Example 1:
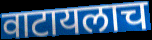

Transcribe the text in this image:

वाटायलाच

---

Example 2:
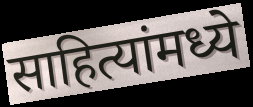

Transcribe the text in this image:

साहित्यांमध्ये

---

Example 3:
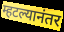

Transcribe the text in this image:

म्हटल्यानंतर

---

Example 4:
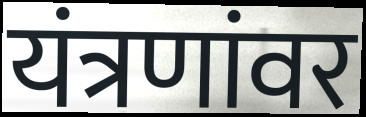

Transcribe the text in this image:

यंत्रणांवर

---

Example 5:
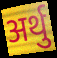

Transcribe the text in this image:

अर्थु